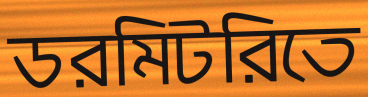
ডরমিটরিতে